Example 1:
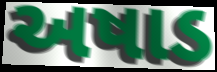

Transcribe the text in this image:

અષાડ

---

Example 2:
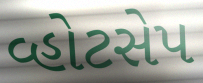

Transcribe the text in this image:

વ્હોટસેપ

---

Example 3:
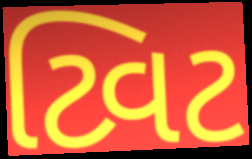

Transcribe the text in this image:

ટ્વિટ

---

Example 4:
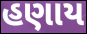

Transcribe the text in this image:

હણાય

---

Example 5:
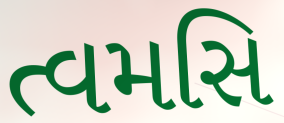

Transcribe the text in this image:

ત્વમસિ